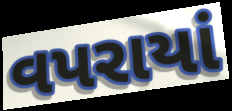
વપરાયાં